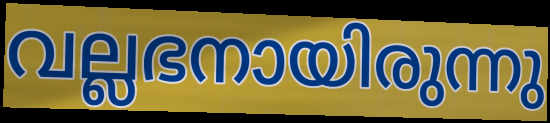
വല്ലഭനായിരുന്നു